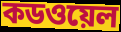
কডওয়েল